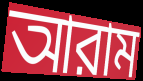
আরাম